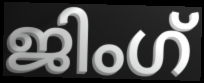
ജിംഗ്